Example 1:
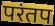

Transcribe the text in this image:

परंतप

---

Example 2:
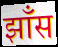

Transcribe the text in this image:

झाँस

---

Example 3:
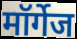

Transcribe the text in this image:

मॉर्गेज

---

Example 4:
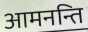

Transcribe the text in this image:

आमनन्ति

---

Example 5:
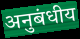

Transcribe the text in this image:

अनुबंधीय